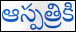
ఆస్పత్రికి